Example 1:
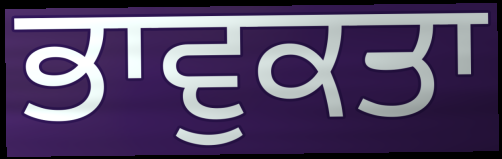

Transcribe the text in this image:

ਭਾਵੁਕਤਾ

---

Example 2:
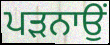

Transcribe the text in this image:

ਪਡ਼ਨਾਉਂ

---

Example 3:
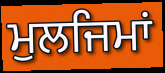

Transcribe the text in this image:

ਮੁਲਜਿਮਾਂ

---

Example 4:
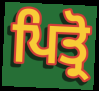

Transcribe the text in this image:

ਪਿਤ੍ਰੋ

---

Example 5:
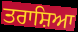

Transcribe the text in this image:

ਤਰਾਸ਼ਿਆ